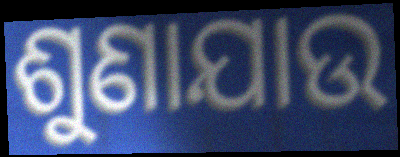
ଶୁଣାଯାଉ